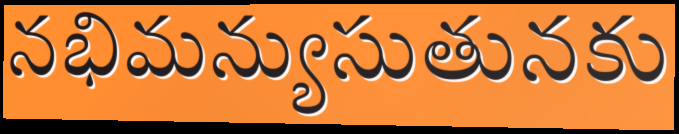
నభిమన్యుసుతునకు